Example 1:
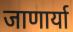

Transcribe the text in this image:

जाणार्या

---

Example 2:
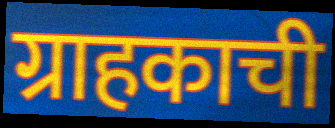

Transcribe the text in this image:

ग्राहकाची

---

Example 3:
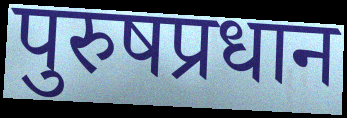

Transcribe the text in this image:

पुरुषप्रधान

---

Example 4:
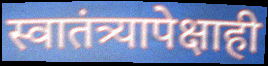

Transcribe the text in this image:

स्वातंत्र्यापेक्षाही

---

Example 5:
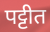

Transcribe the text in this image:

पट्टीत